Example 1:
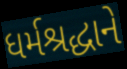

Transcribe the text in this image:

ધર્મશ્રદ્ધાને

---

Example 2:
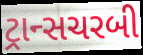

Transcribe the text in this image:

ટ્રાન્સચરબી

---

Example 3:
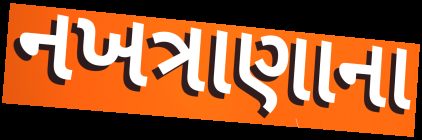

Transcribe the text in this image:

નખત્રાણાના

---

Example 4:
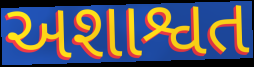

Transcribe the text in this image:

અશાશ્વત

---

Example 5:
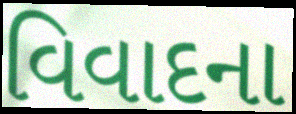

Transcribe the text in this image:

વિવાદના